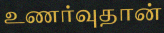
உணர்வுதான்